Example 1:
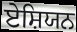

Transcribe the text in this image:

ਏਸ਼ਿਯਨ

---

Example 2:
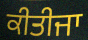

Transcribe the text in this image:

ਕੀਤੀਜਾ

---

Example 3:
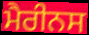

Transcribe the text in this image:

ਮੈਰੀਨਸ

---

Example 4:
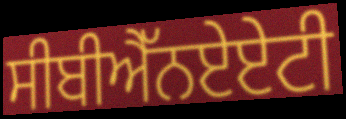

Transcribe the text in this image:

ਸੀਬੀਐੱਨਏਏਟੀ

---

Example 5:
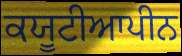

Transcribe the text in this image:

ਕਯੂਟੀਆਪੀਨ